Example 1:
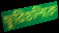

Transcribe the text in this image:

ছুরিগুলিকে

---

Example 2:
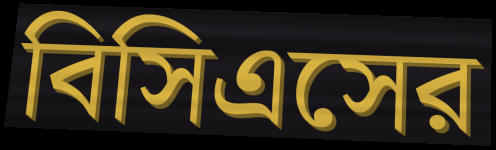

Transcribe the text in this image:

বিসিএসের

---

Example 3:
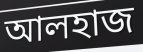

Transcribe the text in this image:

আলহাজ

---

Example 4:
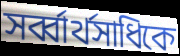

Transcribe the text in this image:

সর্ব্বার্থসাধিকে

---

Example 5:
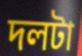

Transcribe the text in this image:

দলটা